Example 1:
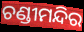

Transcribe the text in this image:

ଚଣ୍ଡୀମନ୍ଦିର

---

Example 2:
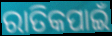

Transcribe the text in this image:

ରାତିକପାଇଁ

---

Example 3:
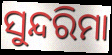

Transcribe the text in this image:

ସୁନ୍ଦରିମା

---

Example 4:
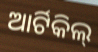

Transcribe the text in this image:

ଆର୍ଟିକିଲ୍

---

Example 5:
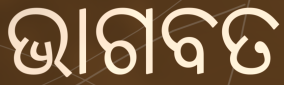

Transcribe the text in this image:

ଭାଗବତ